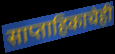
साप्ताहिकाचेही